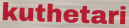
kuthetari